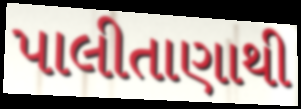
પાલીતાણાથી